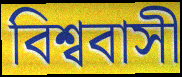
বিশ্ববাসী